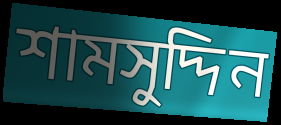
শামসুদ্দিন